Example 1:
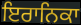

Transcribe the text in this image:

ਇਰਾਨਿਕਾ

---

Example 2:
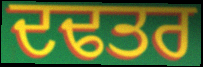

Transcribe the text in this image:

ਦਢਤਰ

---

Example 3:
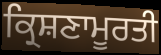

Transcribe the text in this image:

ਕ੍ਰਿਸ਼ਣਾਮੂਰਤੀ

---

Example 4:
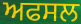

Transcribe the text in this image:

ਅਫਸਲ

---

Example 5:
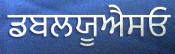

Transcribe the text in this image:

ਡਬਲਯੂਐਸਓ